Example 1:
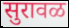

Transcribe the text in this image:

सुरावळ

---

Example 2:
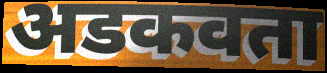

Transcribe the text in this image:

अडकवता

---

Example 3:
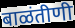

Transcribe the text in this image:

बाळंतीणी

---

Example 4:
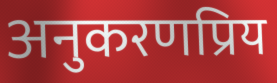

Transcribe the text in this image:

अनुकरणप्रिय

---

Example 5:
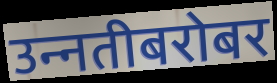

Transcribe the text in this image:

उन्नतीबरोबर